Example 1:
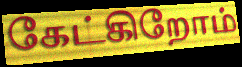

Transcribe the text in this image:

கேட்கிறோம்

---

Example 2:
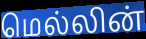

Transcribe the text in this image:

மெல்லின்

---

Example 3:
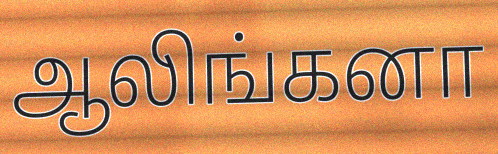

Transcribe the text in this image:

ஆலிங்கனா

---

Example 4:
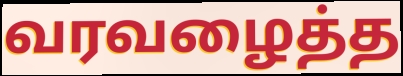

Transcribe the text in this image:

வரவழைத்த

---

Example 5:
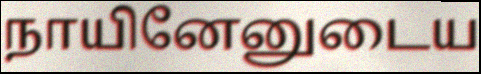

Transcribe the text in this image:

நாயினேனுடைய